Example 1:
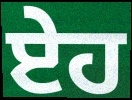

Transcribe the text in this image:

ਏਹ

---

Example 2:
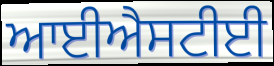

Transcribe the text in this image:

ਆਈਐਸਟੀਈ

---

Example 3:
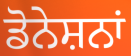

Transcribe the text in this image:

ਡੋਨੇਸ਼ਨਾਂ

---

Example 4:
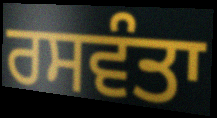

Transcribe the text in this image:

ਰਸਵੰਤਾ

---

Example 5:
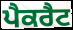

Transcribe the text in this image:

ਪੈਕਰੈਟ